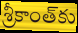
శ్రీకాంత్‌కు